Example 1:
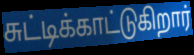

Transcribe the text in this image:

சுட்டிக்காட்டுகிறார்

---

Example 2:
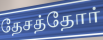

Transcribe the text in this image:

தேசத்தோர்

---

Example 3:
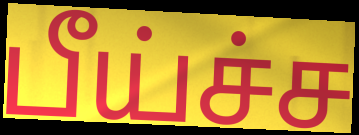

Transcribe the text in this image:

பீய்ச்ச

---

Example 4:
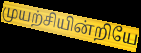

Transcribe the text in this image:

முயற்சியின்றியே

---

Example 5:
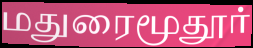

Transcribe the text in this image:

மதுரைமூதூர்